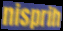
nisprih